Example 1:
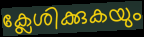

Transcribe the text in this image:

ക്ലേശിക്കുകയും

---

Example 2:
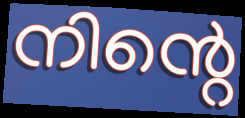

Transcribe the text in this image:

നിന്റെ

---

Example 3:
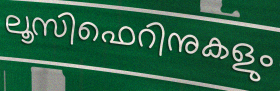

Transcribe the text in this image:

ലൂസിഫെറിനുകളും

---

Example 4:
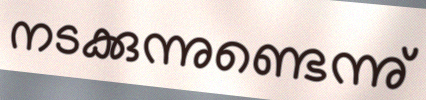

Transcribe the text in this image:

നടക്കുന്നുണ്ടെന്നു്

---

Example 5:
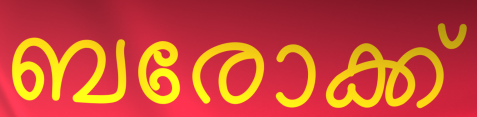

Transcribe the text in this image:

ബരോക്ക്